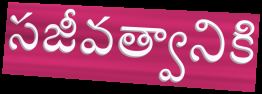
సజీవత్వానికి